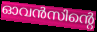
ഓവൻസിന്റെ